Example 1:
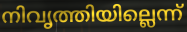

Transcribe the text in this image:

നിവൃത്തിയില്ലെന്ന്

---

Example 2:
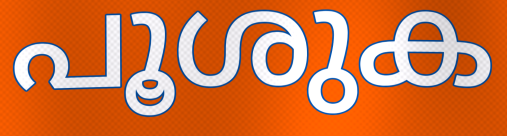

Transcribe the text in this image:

പൂശുക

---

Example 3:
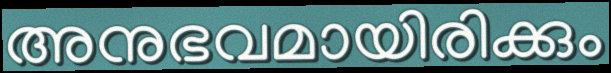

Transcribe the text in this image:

അനുഭവമായിരിക്കും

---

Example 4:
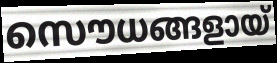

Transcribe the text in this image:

സൌധങ്ങളായ്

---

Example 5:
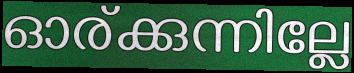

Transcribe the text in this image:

ഓര്ക്കുന്നില്ലേ